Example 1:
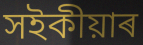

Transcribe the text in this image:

সইকীয়াৰ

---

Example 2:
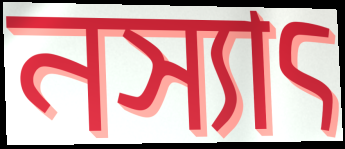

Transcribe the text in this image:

নস্যাৎ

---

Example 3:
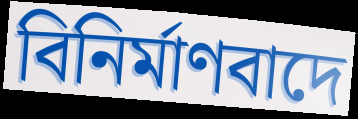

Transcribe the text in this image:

বিনিৰ্মাণবাদে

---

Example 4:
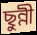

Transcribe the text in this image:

ছুন্নী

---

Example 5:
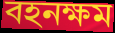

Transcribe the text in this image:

বহনক্ষম